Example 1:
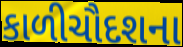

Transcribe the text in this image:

કાળીચૌદશના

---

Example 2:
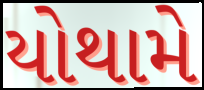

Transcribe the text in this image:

યોથામે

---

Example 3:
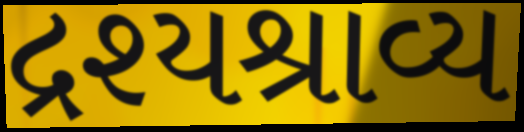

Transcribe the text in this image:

દ્રશ્યશ્રાવ્ય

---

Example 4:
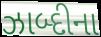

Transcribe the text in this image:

ઝાબ્દીના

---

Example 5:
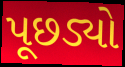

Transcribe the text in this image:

પૂછડ્યો